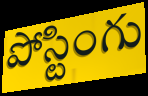
పోస్టింగు